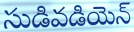
సుడివడియెన్